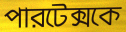
পারটেক্সকে